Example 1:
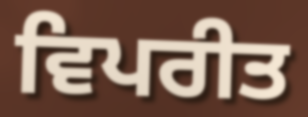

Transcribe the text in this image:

ਵਿਪਰੀਤ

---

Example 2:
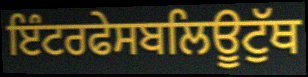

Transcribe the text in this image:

ਇੰਟਰਫੇਸਬਲਿਊਟੁੱਥ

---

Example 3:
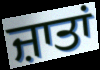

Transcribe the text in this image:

ਜ਼ਾਤਾਂ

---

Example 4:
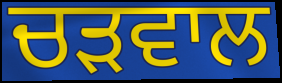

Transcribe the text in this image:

ਚੜਵਾਲ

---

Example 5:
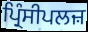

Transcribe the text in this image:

ਪ੍ਰਿੰਸੀਪਲਜ਼